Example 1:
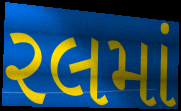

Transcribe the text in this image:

રલમાં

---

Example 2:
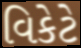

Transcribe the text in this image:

વિકેટે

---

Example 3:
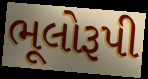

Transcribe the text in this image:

ભૂલોરૂપી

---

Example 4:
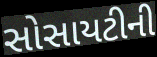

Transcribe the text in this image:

સોસાયટીની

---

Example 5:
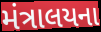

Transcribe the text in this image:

મંત્રાલયના